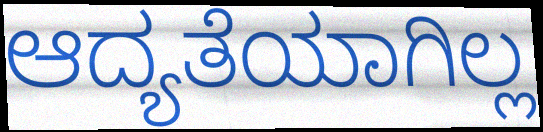
ಆದ್ಯತೆಯಾಗಿಲ್ಲ